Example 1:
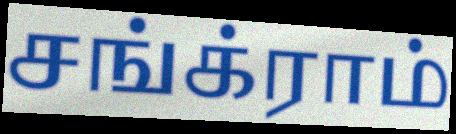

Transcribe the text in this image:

சங்க்ராம்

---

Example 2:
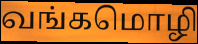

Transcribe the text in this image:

வங்கமொழி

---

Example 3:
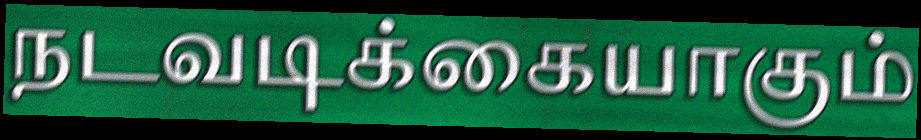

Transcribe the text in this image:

நடவடிக்கையாகும்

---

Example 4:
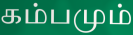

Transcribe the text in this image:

கம்பமும்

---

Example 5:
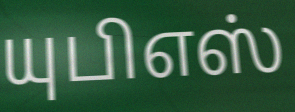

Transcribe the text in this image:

யுபிஎஸ்